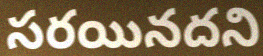
సరయినదని